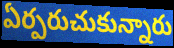
ఏర్పరుచుకున్నారు